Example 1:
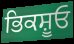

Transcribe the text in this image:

ਭਿਕਸ਼ੂਓ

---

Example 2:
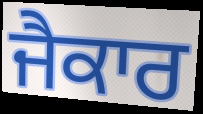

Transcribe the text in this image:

ਜੈਕਾਰ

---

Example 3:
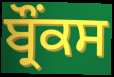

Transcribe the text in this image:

ਬ੍ਰੌਂਕਸ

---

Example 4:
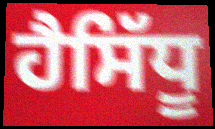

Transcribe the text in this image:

ਹੈਸਿੱਧੂ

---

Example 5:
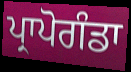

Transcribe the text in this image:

ਪ੍ਰਾਪੋਗੰਡਾ